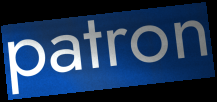
patron